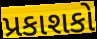
પ્રકાશકો